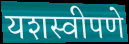
यशस्वीपणे